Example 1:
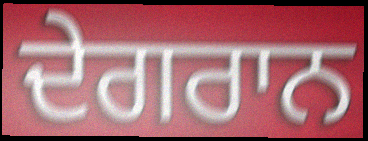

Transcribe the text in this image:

ਦੇਗਰਾਨ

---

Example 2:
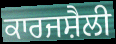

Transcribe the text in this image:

ਕਾਰਜਸ਼ੈਲੀ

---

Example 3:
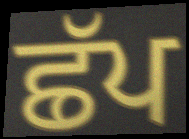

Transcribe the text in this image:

ਛੱਪ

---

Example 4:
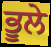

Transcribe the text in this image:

ਭੂਲੇ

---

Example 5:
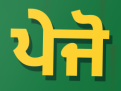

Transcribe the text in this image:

ਪੇਜੋ